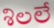
శిలలే